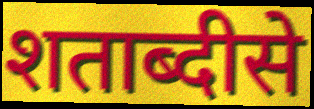
शताब्दीसे